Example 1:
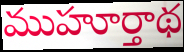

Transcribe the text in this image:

ముహూర్తాథ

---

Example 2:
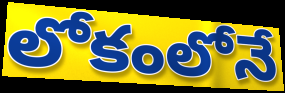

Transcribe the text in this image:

లోకంలోనే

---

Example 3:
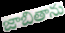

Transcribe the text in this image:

జాబితాను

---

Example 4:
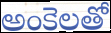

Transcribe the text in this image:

అంకెలతో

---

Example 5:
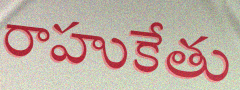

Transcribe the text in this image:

రాహుకేతు